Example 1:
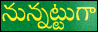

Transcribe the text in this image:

నున్నట్టుగా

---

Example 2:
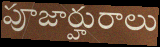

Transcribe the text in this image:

పూజార్హురాలు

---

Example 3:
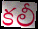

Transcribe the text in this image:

కలీ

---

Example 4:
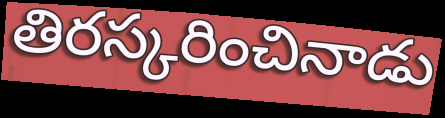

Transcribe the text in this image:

తిరస్కరించినాడు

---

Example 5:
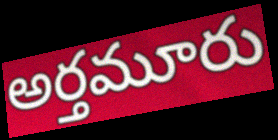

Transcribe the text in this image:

అర్తమూరు